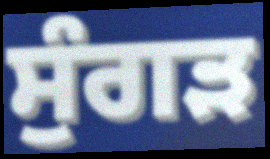
ਸੁੰਗੜ